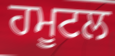
ਹਮੂਟਲ